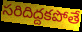
సరిదిద్దకపోతే